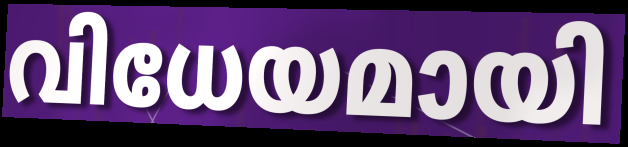
വിധേയമായി